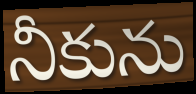
నీకును